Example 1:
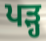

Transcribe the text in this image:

ਪੜ੍ਹ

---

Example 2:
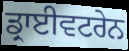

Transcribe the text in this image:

ਡ੍ਰਾਈਵਟਰੇਨ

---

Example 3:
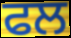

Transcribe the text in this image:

ਫਲ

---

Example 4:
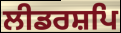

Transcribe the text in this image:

ਲੀਡਰਸ਼ਪਿ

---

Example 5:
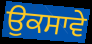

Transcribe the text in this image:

ਉਕਸਾਵੇ